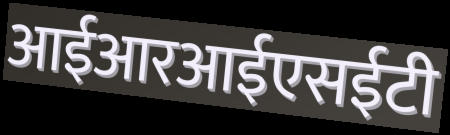
आईआरआईएसईटी